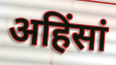
अहिंसां